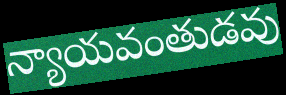
న్యాయవంతుడవు